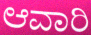
ಆವಾರಿ